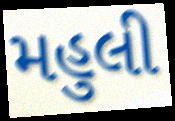
મહુલી